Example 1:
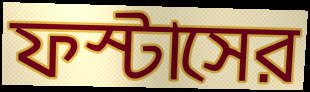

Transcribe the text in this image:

ফস্টাসের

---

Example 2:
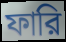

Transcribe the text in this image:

ফারি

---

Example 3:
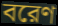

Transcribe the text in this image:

বরেণ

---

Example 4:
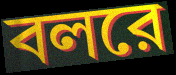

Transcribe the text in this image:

বলরে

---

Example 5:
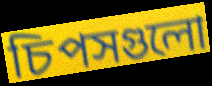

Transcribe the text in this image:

চিপসগুলো